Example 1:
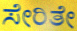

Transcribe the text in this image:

ಸೇರಿತೇ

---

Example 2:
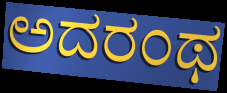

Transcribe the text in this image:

ಅದರಂಥ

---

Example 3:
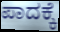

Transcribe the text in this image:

ಪಾದಕ್ಕೆ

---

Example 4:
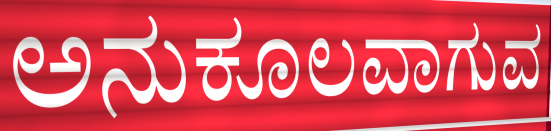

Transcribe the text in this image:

ಅನುಕೂಲವಾಗುವ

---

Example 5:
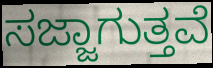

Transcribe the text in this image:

ಸಜ್ಜಾಗುತ್ತವೆ